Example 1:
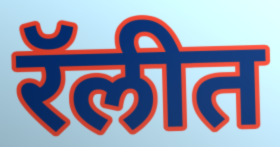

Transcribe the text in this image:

रॅलीत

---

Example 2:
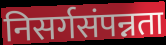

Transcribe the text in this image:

निसर्गसंपन्नता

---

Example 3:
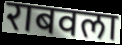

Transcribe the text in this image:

राबवला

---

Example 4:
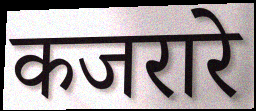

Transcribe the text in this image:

कजरारे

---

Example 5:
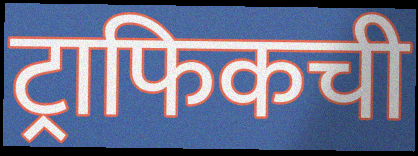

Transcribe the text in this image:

ट्राफिकची